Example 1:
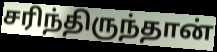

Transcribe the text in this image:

சரிந்திருந்தான்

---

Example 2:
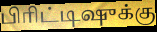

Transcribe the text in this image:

பிரிட்டிஷுக்கு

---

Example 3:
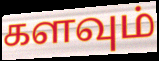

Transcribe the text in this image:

களவும்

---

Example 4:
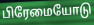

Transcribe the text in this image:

பிரேமையோடு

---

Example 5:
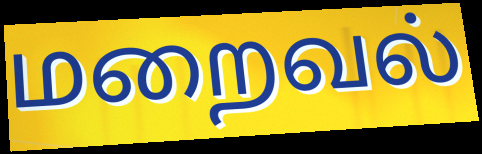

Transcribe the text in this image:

மறைவல்